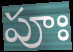
పూః